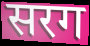
सरग